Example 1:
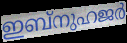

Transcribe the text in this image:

ഇബ്നുഹജർ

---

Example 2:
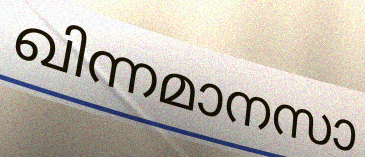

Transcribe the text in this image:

ഖിന്നമാനസാ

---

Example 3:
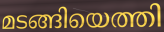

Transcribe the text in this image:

മടങ്ങിയെത്തി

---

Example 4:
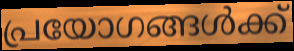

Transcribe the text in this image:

പ്രയോഗങ്ങൾക്ക്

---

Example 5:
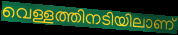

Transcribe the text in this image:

വെള്ളത്തിനടിയിലാണ്